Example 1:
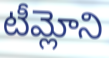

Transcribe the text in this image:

టీమ్లోని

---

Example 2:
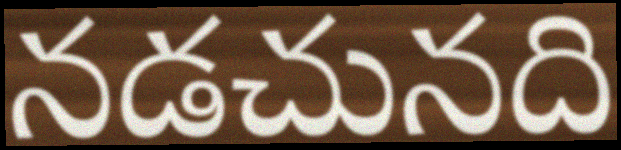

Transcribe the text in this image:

నడచునది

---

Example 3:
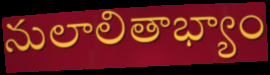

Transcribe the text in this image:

నులాలితాభ్యాం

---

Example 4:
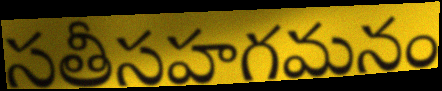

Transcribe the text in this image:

సతీసహగమనం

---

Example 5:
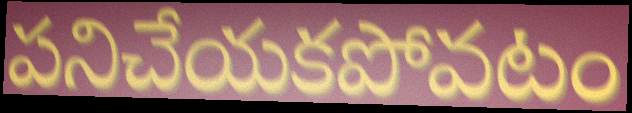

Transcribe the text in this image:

పనిచేయకపోవటం